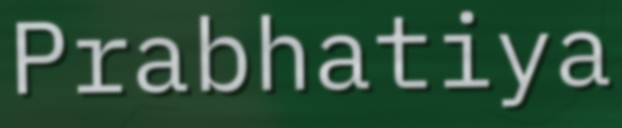
Prabhatiya